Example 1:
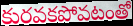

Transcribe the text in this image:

కురవకపోవటంతో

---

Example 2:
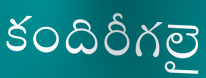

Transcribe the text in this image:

కందిరీగలై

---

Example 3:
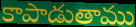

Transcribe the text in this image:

కాపాడుతాము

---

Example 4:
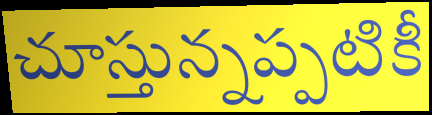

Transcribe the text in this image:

చూస్తున్నప్పటికీ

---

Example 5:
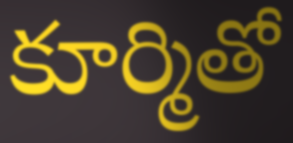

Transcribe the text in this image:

కూర్మితో